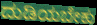
ದುಡಿಯಬೇಕು